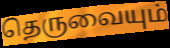
தெருவையும்